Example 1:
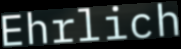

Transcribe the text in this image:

Ehrlich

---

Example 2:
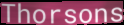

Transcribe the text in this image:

Thorsons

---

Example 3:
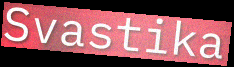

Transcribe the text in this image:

Svastika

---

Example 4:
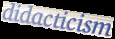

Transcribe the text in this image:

didacticism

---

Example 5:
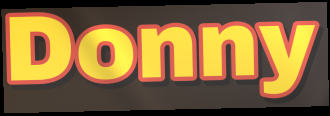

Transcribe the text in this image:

Donny